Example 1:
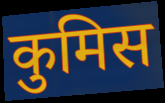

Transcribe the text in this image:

कुमिस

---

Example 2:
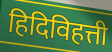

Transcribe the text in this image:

हिदिविहत्ती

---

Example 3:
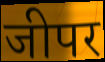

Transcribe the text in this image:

जीपर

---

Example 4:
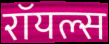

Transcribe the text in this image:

रॉयल्‍स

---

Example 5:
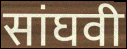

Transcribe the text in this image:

सांघवी